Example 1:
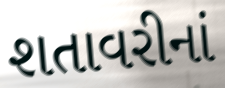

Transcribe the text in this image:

શતાવરીનાં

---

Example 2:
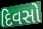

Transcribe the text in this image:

દિવસો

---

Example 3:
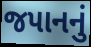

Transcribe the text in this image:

જપાનનું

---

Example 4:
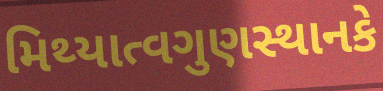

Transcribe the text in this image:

મિથ્યાત્વગુણસ્થાનકે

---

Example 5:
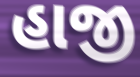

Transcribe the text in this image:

હાજી